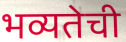
भव्यतेची